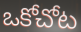
ఒకోచోట